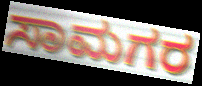
ಸಾಮಗರ